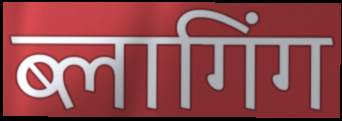
ब्लागिंग